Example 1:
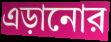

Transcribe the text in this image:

এড়ানোর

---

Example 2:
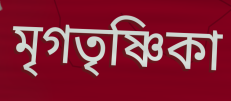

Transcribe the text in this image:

মৃগতৃষ্ণিকা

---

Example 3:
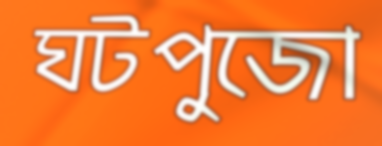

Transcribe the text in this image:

ঘটপুজো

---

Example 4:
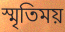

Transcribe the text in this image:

স্মৃতিময়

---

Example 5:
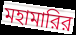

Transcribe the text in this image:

মহামারির